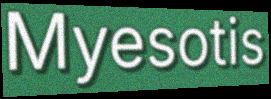
Myesotis